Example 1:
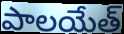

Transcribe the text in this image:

పాలయేత్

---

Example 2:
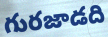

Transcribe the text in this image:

గురజాడది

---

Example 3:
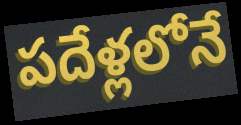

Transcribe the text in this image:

పదేళ్లలోనే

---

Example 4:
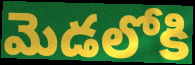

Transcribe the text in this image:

మెడలోకి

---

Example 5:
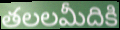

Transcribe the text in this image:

తలలమీదికి